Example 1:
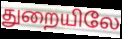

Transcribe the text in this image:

துறையிலே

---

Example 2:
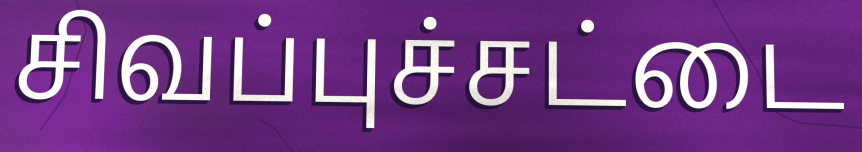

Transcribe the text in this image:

சிவப்புச்சட்டை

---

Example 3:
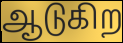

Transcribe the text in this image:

ஆடுகிற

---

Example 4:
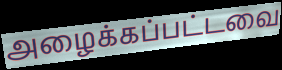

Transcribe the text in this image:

அழைக்கப்பட்டவை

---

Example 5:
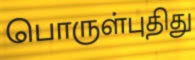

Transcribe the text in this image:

பொருள்புதிது